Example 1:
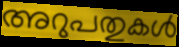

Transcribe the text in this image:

അറുപതുകൾ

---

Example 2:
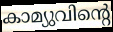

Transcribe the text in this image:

കാമ്യുവിന്റെ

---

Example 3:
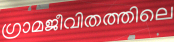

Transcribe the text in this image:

ഗ്രാമജീവിതത്തിലെ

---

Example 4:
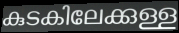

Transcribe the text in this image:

കുടകിലേക്കുള്ള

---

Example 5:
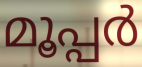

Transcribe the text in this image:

മൂപ്പർ